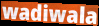
wadiwala